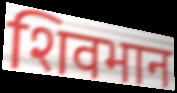
शिवभान